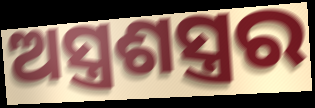
ଅସ୍ତ୍ରଶସ୍ତ୍ରର